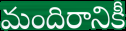
మందిరానికీ